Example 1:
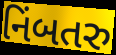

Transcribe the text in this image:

નિંબતરુ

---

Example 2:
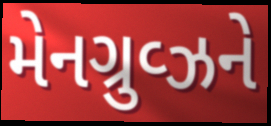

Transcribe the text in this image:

મેનગ્રુવ્ઝને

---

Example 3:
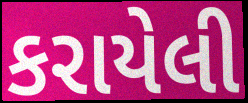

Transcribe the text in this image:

કરાયેલી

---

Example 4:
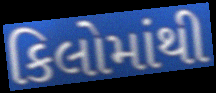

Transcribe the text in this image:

કિલોમાંથી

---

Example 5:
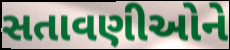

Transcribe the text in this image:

સતાવણીઓને